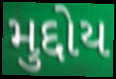
મુદ્દોય